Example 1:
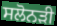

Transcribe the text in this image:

ਸਲੋਨੜੀ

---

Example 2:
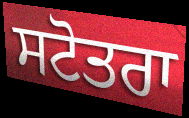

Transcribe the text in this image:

ਸਟੋਤਰਾ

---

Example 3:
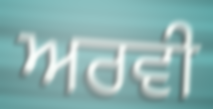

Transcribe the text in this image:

ਅਰਵੀ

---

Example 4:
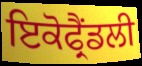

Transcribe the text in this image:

ਇਕੋਫ੍ਰੈਂਡਲੀ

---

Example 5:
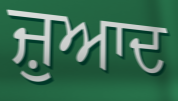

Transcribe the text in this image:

ਜ਼ੁਆਦ